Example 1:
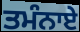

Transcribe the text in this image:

ਤਮੰਨਾਏ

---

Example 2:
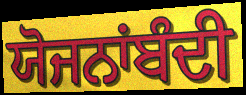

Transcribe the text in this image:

ਯੋਜਨਾਂਬੰਦੀ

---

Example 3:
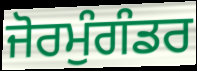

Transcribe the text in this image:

ਜੋਰਮੁੰਗੰਡਰ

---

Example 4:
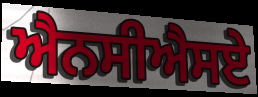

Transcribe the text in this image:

ਐਨਸੀਐਸਏ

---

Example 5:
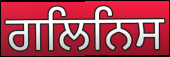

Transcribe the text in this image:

ਗਲਿਨਿਸ